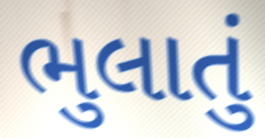
ભુલાતું